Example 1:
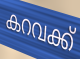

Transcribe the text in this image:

കറവക്ക്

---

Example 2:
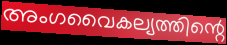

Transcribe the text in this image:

അംഗവൈകല്യത്തിന്റെ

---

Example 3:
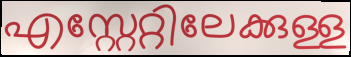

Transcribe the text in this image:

എസ്റ്റേറ്റിലേക്കുള്ള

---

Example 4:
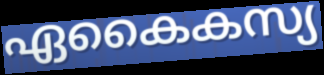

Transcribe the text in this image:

ഏകൈകസ്യ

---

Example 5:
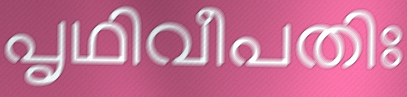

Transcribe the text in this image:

പൃഥിവീപതിഃ